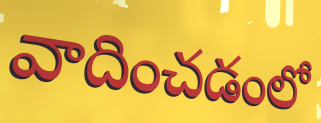
వాదించడంలో